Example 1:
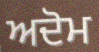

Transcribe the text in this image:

ਅਦੋਮ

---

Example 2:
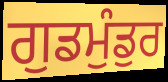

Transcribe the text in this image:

ਗੁਡਮੁੰਡੁਰ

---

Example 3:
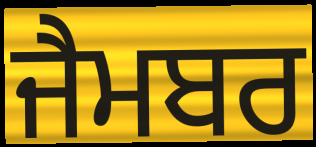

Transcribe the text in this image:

ਜੈਮਬਰ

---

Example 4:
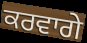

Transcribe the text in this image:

ਕਰਵਾਗੇ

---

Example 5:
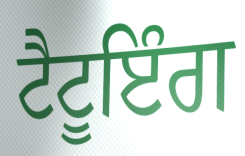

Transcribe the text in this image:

ਟੈਟੂਇੰਗ